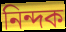
নিন্দক